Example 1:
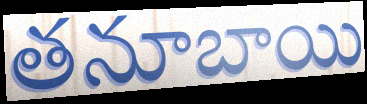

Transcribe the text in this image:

తనూబాయి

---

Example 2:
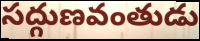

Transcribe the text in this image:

సద్గుణవంతుడు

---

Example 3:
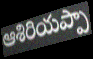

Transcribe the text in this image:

ఆశిరియప్పా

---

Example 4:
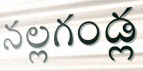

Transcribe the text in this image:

నల్లగండ్ల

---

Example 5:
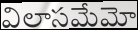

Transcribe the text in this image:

విలాసమేమో